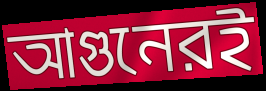
আগুনেরই